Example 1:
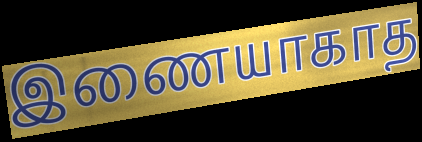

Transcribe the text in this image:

இணையாகாத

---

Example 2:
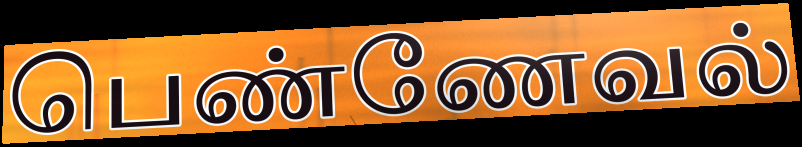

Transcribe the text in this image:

பெண்ணேவல்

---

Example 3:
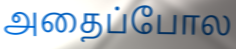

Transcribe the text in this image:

அதைப்போல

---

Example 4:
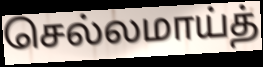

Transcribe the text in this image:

செல்லமாய்த்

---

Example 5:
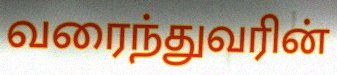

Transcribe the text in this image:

வரைந்துவரின்